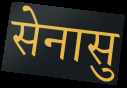
सेनासु